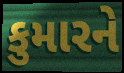
કુમારને